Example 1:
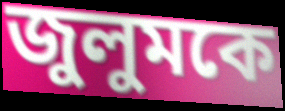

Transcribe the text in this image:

জুলুমকে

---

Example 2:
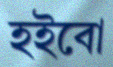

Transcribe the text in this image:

হইবো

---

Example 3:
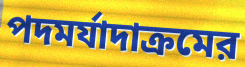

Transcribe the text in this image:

পদমর্যাদাক্রমের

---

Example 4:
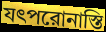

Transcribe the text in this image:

যৎপরোনাস্তি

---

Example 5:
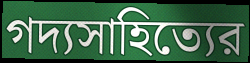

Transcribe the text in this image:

গদ্যসাহিত্যের